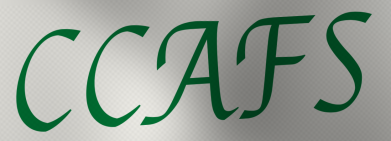
CCAFS